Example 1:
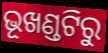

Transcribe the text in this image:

ଭୂଖଣ୍ଡଟିରୁ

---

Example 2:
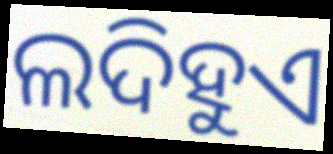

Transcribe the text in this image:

ଲଦିହୁଏ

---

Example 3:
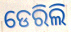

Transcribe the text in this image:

ଡେରିଲି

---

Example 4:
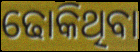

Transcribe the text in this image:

ଢୋକିଥିବା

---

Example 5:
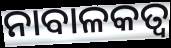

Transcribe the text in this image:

ନାବାଳକତ୍ଵ